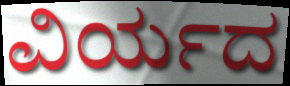
ವಿರ್ಯದ